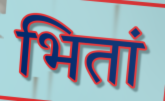
भितां